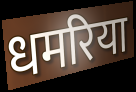
धमरिया